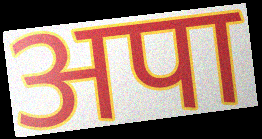
अपा